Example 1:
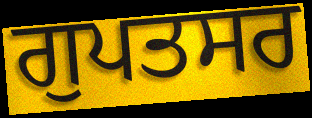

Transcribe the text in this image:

ਗੁਪਤਸਰ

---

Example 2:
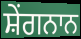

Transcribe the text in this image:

ਸ਼ੇਂਗਨਾਨ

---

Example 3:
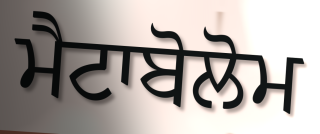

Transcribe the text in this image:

ਮੈਟਾਬੋਲੋਮ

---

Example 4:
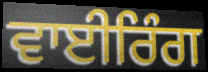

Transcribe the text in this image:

ਵਾਈਰਿੰਗ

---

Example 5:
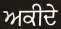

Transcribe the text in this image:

ਅਕੀਦੇ